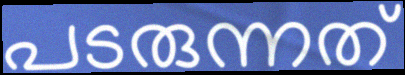
പടരുന്നത്